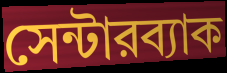
সেন্টারব্যাক